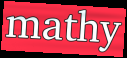
mathy